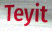
Teyit